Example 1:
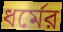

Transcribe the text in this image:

ধর্মের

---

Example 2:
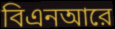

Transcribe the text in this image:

বিএনআরে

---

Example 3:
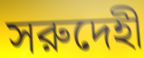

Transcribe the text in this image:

সরুদেহী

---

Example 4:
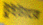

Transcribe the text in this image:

টুইটারে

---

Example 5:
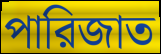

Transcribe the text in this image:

পারিজাত